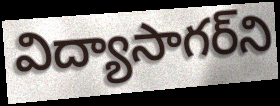
విద్యాసాగర్‌ని